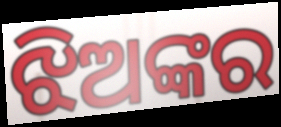
ଝିଅଙ୍କର